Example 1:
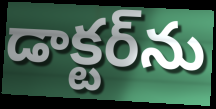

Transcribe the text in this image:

డాక్టర్‌ను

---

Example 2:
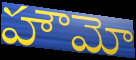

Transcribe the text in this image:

హౌమో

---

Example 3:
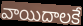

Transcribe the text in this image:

వాయిదాలకే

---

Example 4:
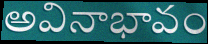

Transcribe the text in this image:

అవినాభావం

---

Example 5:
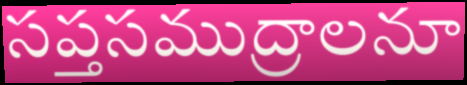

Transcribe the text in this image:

సప్తసముద్రాలనూ